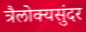
त्रैलोक्यसुंदर